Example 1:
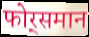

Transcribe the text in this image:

फोर्समान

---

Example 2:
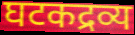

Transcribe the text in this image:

घटकद्रव्य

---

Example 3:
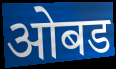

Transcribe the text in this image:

ओबड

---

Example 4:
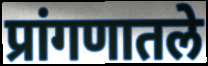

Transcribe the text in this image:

प्रांगणातले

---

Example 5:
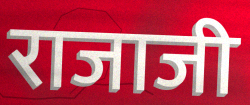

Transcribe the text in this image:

राजाजी